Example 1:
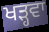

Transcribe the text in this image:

ਖੜ੍ਹਵਾ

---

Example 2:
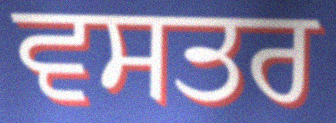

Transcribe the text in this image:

ਵਸਤਰ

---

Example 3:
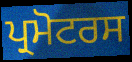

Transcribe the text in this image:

ਪ੍ਰਮੋਟਰਸ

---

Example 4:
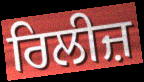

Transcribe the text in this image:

ਰਿਲੀਜ਼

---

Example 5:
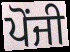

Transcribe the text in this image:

ਪੋਂਜੀ